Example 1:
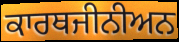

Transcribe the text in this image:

ਕਾਰਥਜੀਨੀਅਨ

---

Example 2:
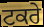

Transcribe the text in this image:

ਟਕਰੇ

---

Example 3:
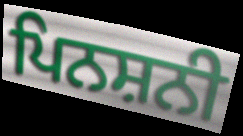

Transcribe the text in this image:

ਪਿਨਸ਼ਨੀ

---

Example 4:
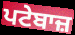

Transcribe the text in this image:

ਪਟੇਬਾਜ਼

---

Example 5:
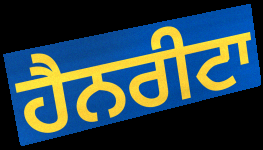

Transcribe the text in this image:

ਹੈਨਰੀਟਾ